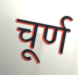
चूर्ण